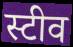
स्टीव